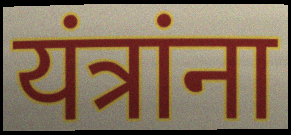
यंत्रांना